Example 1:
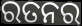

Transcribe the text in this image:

ରତନର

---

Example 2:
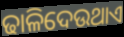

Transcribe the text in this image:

ଢାଳିଦେଉଥାଏ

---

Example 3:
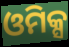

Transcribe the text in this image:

ଓମିକ୍ସ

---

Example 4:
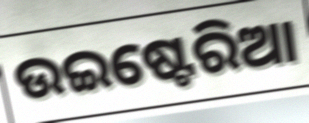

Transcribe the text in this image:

ଉଇଷ୍ଟେରିଆ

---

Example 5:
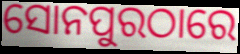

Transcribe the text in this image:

ସୋନପୁରଠାରେ